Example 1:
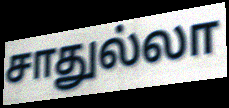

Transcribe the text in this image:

சாதுல்லா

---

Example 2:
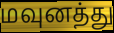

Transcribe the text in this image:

மவுனத்து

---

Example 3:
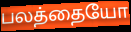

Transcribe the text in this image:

பலத்தையோ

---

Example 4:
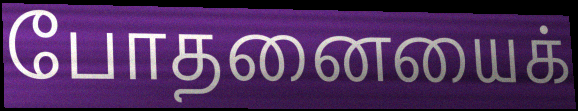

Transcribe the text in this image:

போதனையைக்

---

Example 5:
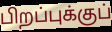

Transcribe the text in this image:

பிறப்புக்குப்